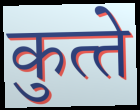
कुत्‍ते